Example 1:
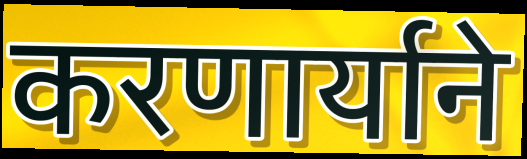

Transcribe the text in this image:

करणार्याने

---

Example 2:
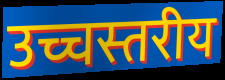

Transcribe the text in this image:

उच्चस्तरीय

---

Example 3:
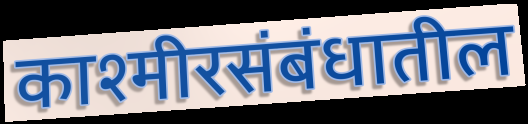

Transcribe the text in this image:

काश्मीरसंबंधातील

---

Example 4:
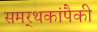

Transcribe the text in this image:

समर्थकांपैकी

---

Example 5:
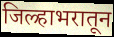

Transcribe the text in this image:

जिल्हाभरातून